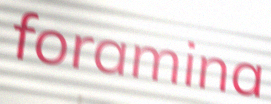
foramina